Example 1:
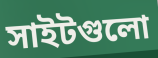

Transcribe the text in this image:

সাইটগুলো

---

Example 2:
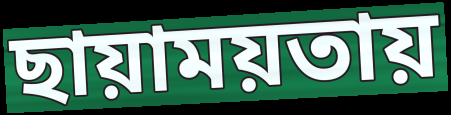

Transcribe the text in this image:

ছায়াময়তায়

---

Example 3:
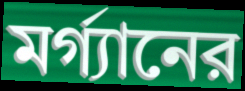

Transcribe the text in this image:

মর্গ্যানের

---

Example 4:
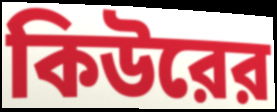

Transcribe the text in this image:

কিউরের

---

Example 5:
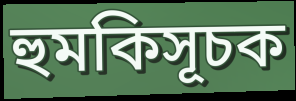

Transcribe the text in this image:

হুমকিসূচক